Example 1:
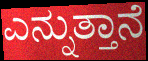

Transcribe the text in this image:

ಎನ್ನುತ್ತಾನೆ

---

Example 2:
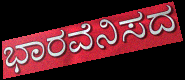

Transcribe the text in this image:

ಭಾರವೆನಿಸದ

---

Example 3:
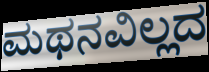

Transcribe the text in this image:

ಮಥನವಿಲ್ಲದ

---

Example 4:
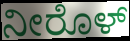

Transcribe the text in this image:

ನೀರೊಳ್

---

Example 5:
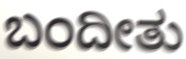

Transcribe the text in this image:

ಬಂದೀತು